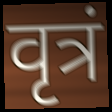
वृत्रं